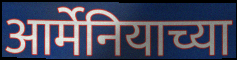
आर्मेनियाच्या